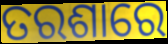
ତରଶାରେ